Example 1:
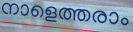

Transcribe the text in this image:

നാളെത്തരാം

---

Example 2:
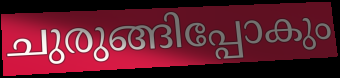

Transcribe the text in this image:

ചുരുങ്ങിപ്പോകും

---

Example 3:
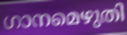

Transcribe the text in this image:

ഗാനമെഴുതി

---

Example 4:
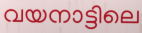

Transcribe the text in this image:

വയനാട്ടിലെ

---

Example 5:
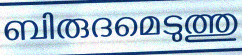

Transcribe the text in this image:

ബിരുദമെടുത്തു